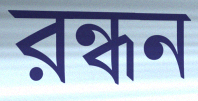
রন্ধন